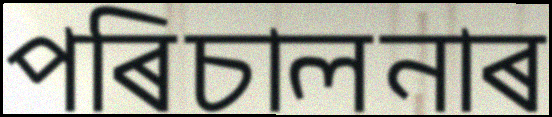
পৰিচালনাৰ